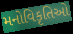
મનોવિકૃતિઓ